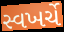
સ્વખર્ચે